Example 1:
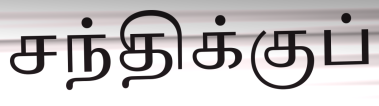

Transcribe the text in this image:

சந்திக்குப்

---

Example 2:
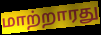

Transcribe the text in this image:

மாற்றாரது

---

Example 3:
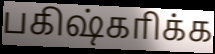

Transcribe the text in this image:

பகிஷ்கரிக்க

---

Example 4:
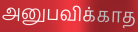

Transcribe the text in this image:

அனுபவிக்காத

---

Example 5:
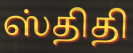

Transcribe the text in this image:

ஸ்திதி